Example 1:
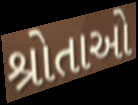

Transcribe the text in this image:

શ્રોતાઓ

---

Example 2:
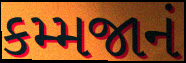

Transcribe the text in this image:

કમ્મજાનં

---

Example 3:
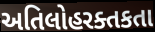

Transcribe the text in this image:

અતિલોહરક્તકતા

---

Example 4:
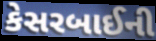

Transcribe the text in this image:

કેસરબાઈની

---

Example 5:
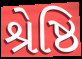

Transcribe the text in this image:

શ્રેષ્ઠિ